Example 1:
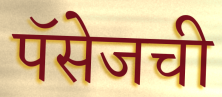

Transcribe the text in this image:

पॅसेजची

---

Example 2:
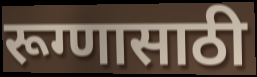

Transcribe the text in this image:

रूग्णासाठी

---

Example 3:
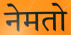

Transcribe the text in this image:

नेमतो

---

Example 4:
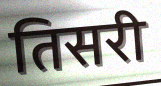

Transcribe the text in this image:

तिसरी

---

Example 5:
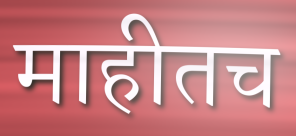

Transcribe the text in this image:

माहीतच